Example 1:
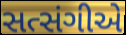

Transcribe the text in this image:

સત્સંગીએ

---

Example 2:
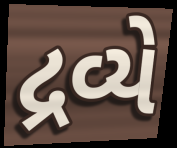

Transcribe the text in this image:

દ્રવ્યે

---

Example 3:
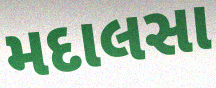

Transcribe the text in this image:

મદાલસા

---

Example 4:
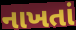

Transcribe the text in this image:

નાખતાં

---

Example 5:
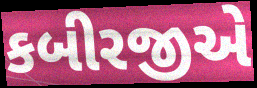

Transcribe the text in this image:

કબીરજીએ